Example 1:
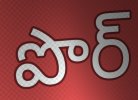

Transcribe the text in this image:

పొర్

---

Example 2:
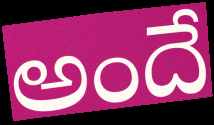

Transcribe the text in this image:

అందే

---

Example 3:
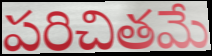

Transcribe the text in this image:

పరిచితమే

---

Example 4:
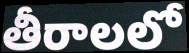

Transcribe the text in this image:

తీరాలలో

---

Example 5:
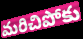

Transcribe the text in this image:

మరిచిపోకు